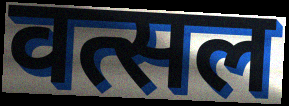
वत्सल